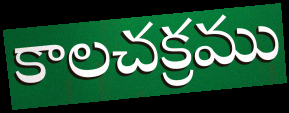
కాలచక్రము